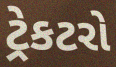
ટ્રેકટરો